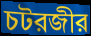
চটরজীর